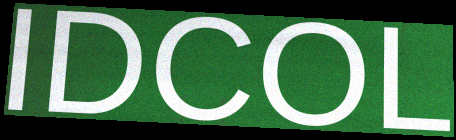
IDCOL